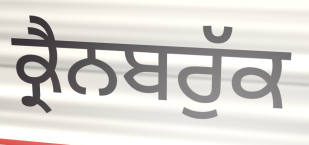
ਕ੍ਰੈਨਬਰੁੱਕ